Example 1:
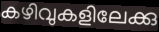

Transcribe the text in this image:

കഴിവുകളിലേക്കു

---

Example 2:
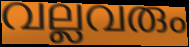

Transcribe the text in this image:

വല്ലവരും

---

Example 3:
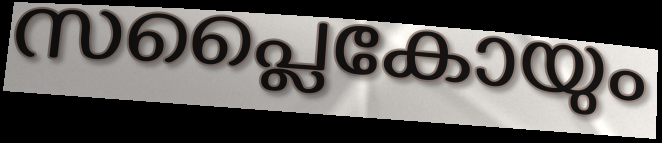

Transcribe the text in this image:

സപ്ലൈകോയും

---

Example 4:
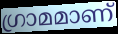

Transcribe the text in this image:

ഗ്രാമമാണ്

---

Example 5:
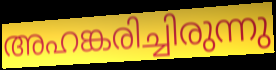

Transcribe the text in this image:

അഹങ്കരിച്ചിരുന്നു